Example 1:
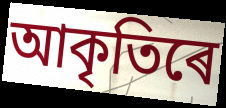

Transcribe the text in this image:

আকৃতিৰে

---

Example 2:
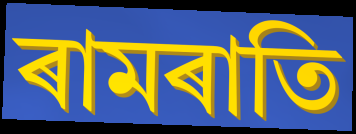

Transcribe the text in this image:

ৰামৰাতি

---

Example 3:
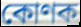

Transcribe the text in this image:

কোণক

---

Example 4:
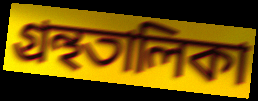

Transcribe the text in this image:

গ্ৰন্থতালিকা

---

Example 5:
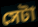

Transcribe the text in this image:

সেটা